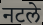
नटले